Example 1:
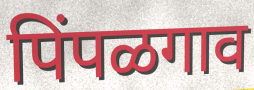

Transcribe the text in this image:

पिंपळगाव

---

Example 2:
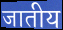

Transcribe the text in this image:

जातीय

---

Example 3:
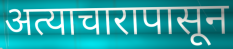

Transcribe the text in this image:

अत्याचारापासून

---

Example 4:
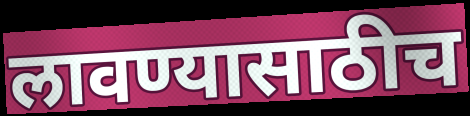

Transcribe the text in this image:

लावण्यासाठीच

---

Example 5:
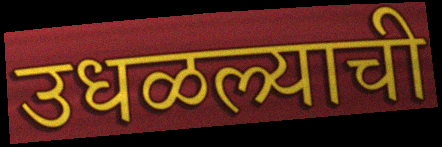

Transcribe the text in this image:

उधळल्याची